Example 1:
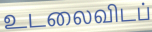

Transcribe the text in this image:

உடலைவிடப்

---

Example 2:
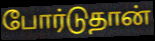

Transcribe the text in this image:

போர்டுதான்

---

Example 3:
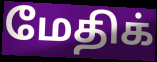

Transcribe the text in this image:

மேதிக்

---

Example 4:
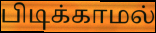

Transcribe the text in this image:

பிடிக்காமல்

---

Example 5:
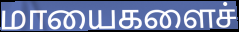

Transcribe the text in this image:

மாயைகளைச்